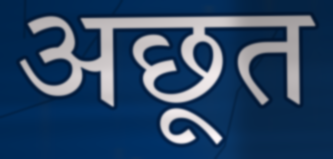
अछूत